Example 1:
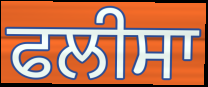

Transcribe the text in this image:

ਫਲੀਸਾ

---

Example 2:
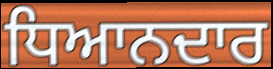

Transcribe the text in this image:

ਧਿਆਨਦਾਰ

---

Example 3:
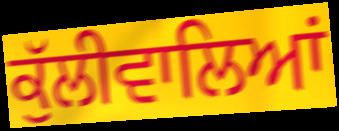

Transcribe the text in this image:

ਕੁੱਲੀਵਾਲਿਆਂ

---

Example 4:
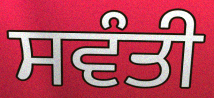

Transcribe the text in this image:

ਸਵੰਤੀ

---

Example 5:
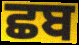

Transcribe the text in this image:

ਛਬ